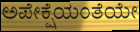
ಅಪೇಕ್ಷೆಯಂತೆಯೇ